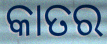
କାତର